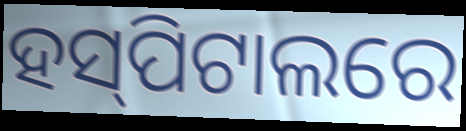
ହସ୍‍ପିଟାଲରେ